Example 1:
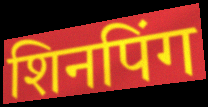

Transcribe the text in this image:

शिनपिंग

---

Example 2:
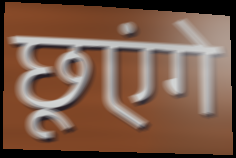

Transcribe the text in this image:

छूएंगे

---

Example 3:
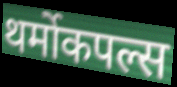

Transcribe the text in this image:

थर्मोकपल्स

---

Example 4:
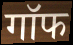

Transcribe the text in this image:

गॉफ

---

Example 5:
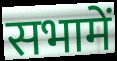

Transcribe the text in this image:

सभामें